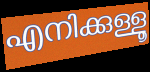
എനിക്കുള്ളൂ